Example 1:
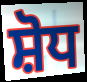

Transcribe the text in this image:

ਸ਼ੋਧ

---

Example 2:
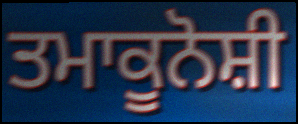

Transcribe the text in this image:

ਤਮਾਕੂਨੋਸ਼ੀ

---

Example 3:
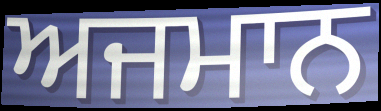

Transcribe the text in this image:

ਅਜਮਾਨ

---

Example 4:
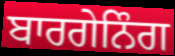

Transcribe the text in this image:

ਬਾਰਗੇਨਿੰਗ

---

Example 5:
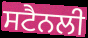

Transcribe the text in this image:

ਸਟੈਨਲੀ